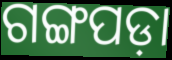
ଗଙ୍ଗପଡ଼ା